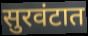
सुरवंटात